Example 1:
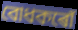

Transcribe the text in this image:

বোধকৰোঁ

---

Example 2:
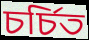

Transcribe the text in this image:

চৰ্চিত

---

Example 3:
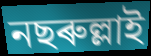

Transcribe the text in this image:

নছৰুল্লাই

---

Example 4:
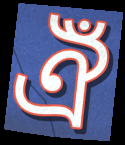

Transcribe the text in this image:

ঐঁ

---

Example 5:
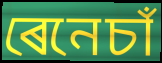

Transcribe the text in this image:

ৰেনেচাঁ